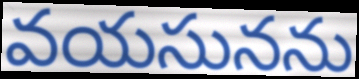
వయసునను